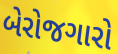
બેરોજગારો